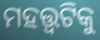
ମହତ୍ତ୍ୱଟିକୁ